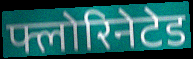
फ्लोरिनेटेड